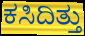
ಕಸಿದಿತ್ತು